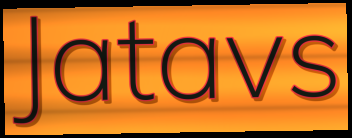
Jatavs